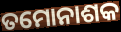
ତମୋନାଶକ